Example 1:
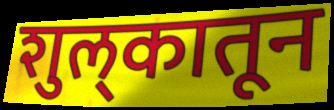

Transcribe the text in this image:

शुल्कातून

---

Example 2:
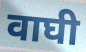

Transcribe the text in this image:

वाघी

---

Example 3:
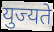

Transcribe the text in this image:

युज्यते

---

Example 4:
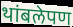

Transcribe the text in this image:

थांबलेपण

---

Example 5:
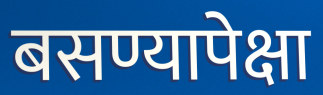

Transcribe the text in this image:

बसण्यापेक्षा